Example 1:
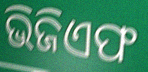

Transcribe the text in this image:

ଭିଜିଏଫ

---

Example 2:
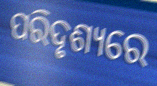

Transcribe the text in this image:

ପରିଦୃଶ୍ୟରେ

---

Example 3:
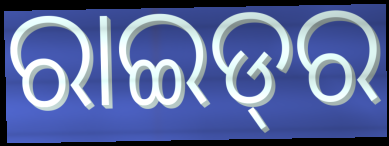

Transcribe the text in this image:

ରାଇଡ୍‌ର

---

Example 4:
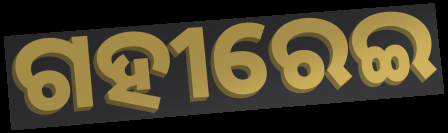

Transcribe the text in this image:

ଗହୀରେଇ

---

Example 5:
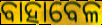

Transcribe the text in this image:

ବାହାବେଳ